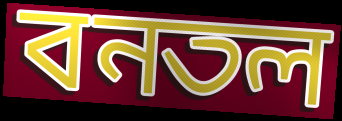
বনতল